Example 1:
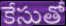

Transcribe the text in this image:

కేసుతో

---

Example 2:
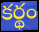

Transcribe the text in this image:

కర్థం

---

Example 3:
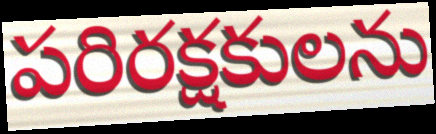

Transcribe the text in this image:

పరిరక్షకులను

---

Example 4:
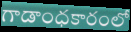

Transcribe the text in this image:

గాడాంధకారంలో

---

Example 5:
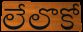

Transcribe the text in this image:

లేలొకో